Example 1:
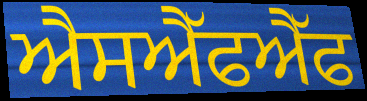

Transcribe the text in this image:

ਐਸਐੱਫਐੱਫ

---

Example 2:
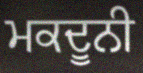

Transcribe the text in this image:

ਮਕਦੂਨੀ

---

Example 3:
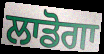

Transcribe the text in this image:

ਲਾਡੋਗਾ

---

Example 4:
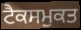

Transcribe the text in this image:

ਟੈਕਸਮੁਕਤ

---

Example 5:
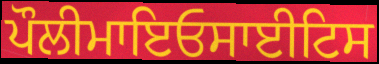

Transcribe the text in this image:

ਪੌਲੀਮਾਇਓਸਾਈਟਿਸ